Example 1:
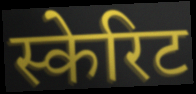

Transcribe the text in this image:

स्केरिट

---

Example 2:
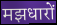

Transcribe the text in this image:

मझधारों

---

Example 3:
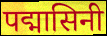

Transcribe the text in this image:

पद्मासिनी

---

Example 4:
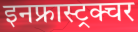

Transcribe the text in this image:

इनफ्रास्ट्रक्चर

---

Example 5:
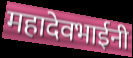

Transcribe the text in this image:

महादेवभाईनी